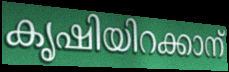
കൃഷിയിറക്കാന്